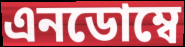
এনডোম্বে